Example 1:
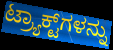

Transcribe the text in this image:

ಟ್ರ್ಯಾಕ್ಟ್‌ಗಳನ್ನು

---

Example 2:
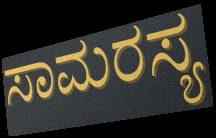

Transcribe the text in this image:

ಸಾಮರಸ್ಯ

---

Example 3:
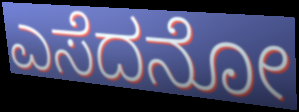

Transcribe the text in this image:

ಎಸೆದನೋ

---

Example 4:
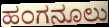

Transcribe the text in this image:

ಹಂಗನೂಲು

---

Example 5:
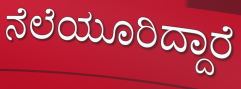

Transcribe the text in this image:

ನೆಲೆಯೂರಿದ್ದಾರೆ